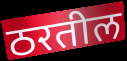
ठरतील